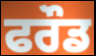
ਫਰੌਡ